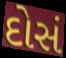
દોસં